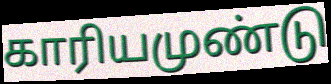
காரியமுண்டு